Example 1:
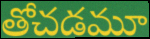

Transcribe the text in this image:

తోచడమూ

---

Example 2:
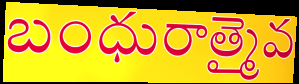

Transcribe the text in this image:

బంధురాత్మైవ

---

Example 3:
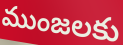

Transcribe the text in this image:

ముంజలకు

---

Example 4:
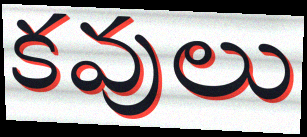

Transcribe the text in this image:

కవులు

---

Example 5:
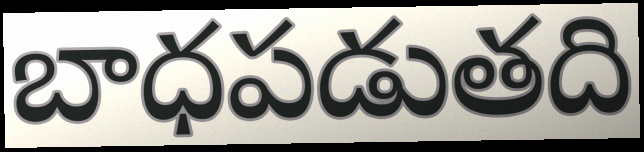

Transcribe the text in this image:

బాధపడుతది